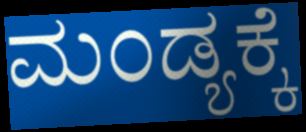
ಮಂಡ್ಯಕ್ಕೆ